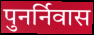
पुनर्निवास